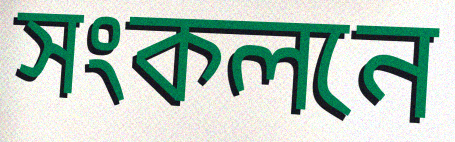
সংকলনে